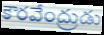
కౌరవేంద్రుడు